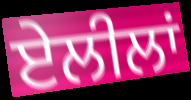
ਏਲੀਲਾਂ